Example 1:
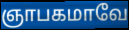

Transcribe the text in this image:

ஞாபகமாவே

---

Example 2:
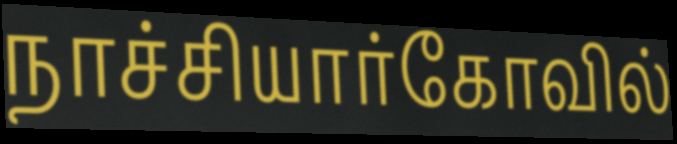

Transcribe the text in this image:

நாச்சியார்கோவில்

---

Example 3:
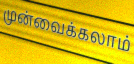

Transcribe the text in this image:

முன்வைக்கலாம்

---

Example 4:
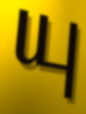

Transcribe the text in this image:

யு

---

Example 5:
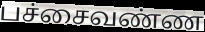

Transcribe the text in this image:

பச்சைவண்ண